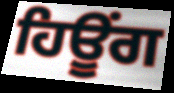
ਹਿਊੰਗ